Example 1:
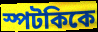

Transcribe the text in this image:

স্পটকিকে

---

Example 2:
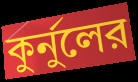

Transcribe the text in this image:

কুর্নুলের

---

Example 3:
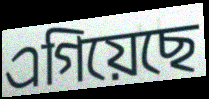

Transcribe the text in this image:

এগিয়েছে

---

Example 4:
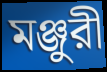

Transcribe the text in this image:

মঞ্জুরী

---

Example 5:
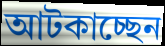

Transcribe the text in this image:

আটকাচ্ছেন